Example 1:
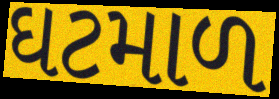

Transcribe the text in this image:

ઘટમાળ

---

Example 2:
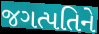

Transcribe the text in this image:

જગત્પતિને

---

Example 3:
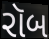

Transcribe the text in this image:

રૉબ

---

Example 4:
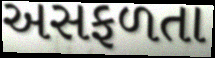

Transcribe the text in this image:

અસફળતા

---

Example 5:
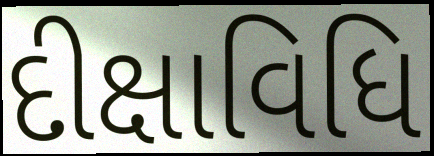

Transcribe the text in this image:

દીક્ષાવિધિ